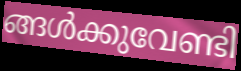
ങ്ങൾക്കുവേണ്ടി